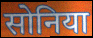
सोनिया